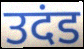
उदंड